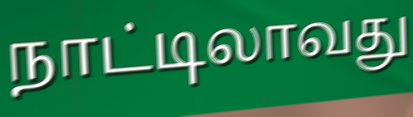
நாட்டிலாவது